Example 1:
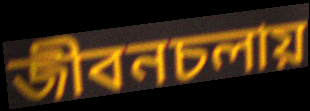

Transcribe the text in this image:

জীবনচলায়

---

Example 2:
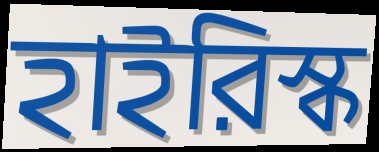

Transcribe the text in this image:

হাইরিস্ক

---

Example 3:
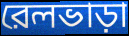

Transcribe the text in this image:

রেলভাড়া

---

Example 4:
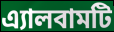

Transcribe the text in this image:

এ্যালবামটি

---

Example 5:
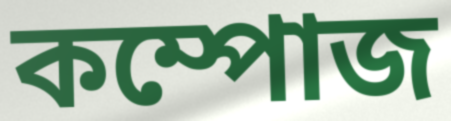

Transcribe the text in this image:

কম্পোজ